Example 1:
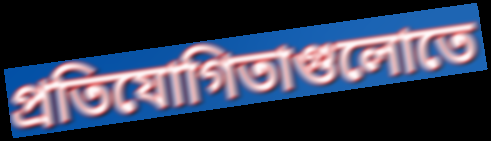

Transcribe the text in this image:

প্রতিযোগিতাগুলোতে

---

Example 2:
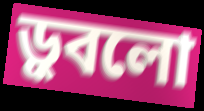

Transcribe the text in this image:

ড়ুবলো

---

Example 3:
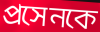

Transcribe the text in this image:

প্রসেনকে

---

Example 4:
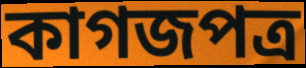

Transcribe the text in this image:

কাগজপত্র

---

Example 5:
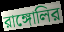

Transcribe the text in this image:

রাঙ্গোলির